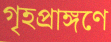
গৃহপ্রাঙ্গণে